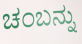
ಚಂಬನ್ನು